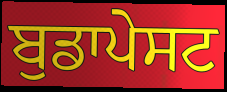
ਬੁਡਾਪੇਸਟ